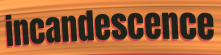
incandescence